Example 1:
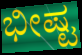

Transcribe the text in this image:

ಭೀಷ್ಟ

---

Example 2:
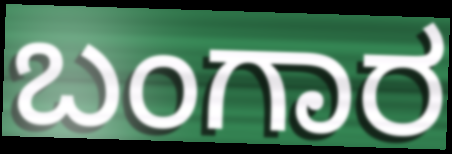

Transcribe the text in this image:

ಬಂಗಾರ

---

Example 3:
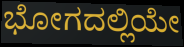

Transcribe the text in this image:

ಭೋಗದಲ್ಲಿಯೇ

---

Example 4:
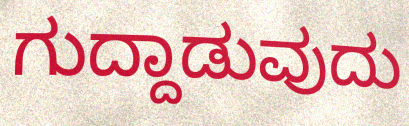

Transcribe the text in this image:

ಗುದ್ದಾಡುವುದು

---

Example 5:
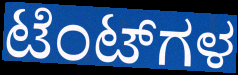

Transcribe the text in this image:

ಟೆಂಟ್‌ಗಳ